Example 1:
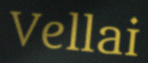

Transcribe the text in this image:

Vellai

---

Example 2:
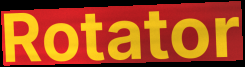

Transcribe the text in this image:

Rotator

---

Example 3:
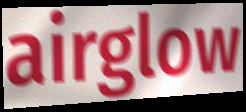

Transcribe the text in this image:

airglow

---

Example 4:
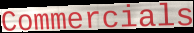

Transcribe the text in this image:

Commercials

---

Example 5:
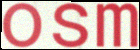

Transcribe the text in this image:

osm